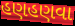
હણહણવા